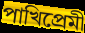
পাখিপ্রেমী